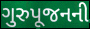
ગુરુપૂજનની